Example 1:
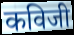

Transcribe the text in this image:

कविजी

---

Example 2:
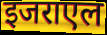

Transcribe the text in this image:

इजराएल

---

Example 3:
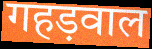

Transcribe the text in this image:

गहड़वाल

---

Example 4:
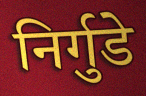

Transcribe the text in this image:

निर्गुडे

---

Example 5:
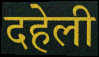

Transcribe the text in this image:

दहेली